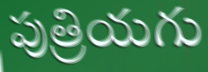
పుత్రియగు